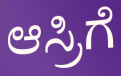
ಆಸ್ರಿಗೆ